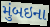
મુંબઇના